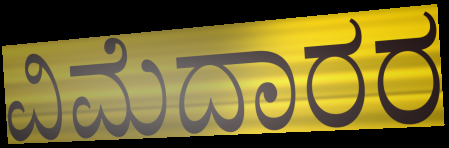
ವಿಮೆದಾರರ